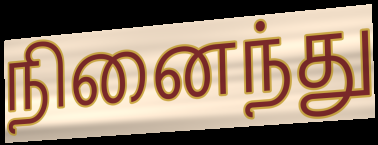
நினைந்து